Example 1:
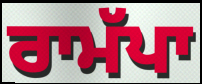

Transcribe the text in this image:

ਰਾਮੱਪਾ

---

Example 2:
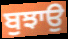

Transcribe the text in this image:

ਬੁਝਾਉ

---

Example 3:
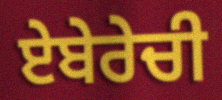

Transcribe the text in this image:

ਏਬੇਰੇਚੀ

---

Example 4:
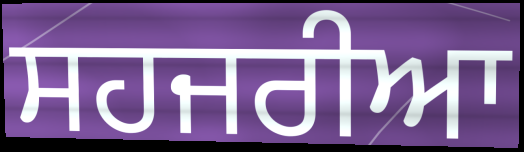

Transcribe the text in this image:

ਸਹਜਰੀਆ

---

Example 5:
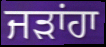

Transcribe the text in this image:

ਜੜਾਂਹਾ